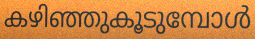
കഴിഞ്ഞുകൂടുമ്പോൾ